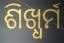
ଶିଖ୍ଧର୍ମ